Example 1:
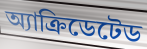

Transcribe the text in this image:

অ্যাক্রিডেটেড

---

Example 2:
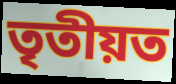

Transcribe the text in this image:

তৃতীয়ত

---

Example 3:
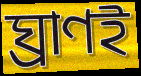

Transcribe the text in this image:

ঘ্রাণই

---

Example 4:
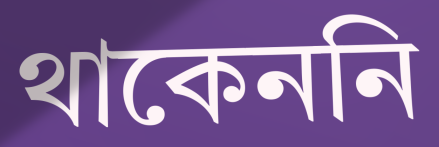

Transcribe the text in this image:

থাকেননি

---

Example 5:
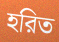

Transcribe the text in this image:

হরিত